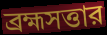
ব্রহ্মসত্তার